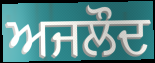
ਅਜਲੌਦ